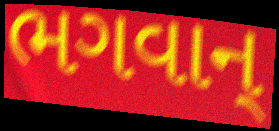
ભગવાન્